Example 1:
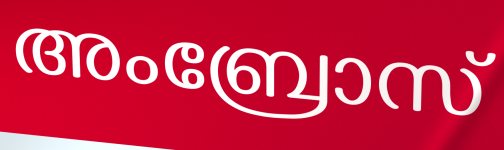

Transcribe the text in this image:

അംബ്രോസ്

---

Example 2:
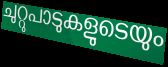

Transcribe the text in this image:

ചുറ്റുപാടുകളുടെയും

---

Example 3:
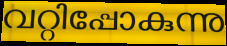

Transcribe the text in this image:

വറ്റിപ്പോകുന്നു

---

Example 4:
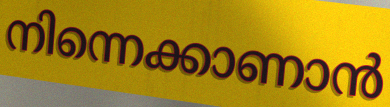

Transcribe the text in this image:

നിന്നെക്കാണാൻ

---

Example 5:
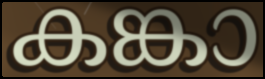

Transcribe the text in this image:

കങ്കാ